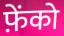
फ़ेंको